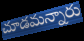
చూడమన్నారు